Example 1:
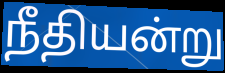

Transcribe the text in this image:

நீதியன்று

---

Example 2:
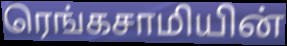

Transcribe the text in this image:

ரெங்கசாமியின்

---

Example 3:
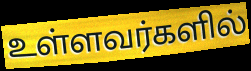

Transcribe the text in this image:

உள்ளவர்களில்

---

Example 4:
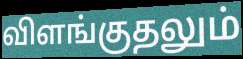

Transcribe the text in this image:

விளங்குதலும்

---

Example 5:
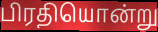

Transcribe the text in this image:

பிரதியொன்று